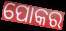
ପୋକର